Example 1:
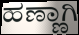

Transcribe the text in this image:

ಹಣ್ಣಾಗಿ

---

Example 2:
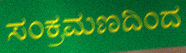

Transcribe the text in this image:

ಸಂಕ್ರಮಣದಿಂದ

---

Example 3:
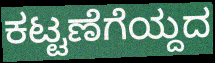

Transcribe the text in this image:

ಕಟ್ಟಣೆಗೆಯ್ದದ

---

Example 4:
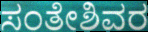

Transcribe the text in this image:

ಸಂತೇಶಿವರ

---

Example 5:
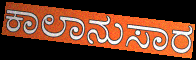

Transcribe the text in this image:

ಕಾಲಾನುಸಾರ